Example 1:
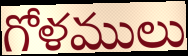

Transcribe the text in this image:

గోళములు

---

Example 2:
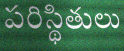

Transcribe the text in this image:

పరిస్థితులు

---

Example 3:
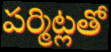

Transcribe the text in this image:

పర్మిట్లతో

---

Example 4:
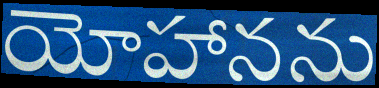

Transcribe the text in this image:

యోహానను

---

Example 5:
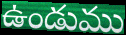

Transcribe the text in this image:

ఉండుము